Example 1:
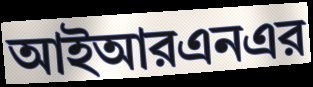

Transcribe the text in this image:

আইআরএনএর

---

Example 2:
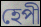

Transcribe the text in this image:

হেপী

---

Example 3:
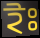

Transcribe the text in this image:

ইঃ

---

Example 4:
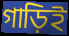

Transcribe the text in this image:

গাড়িই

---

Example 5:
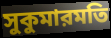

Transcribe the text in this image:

সুকুমারমতি